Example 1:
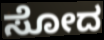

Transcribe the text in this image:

ಸೋದ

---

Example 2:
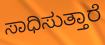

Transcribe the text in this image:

ಸಾಧಿಸುತ್ತಾರೆ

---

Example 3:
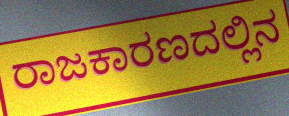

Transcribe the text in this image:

ರಾಜಕಾರಣದಲ್ಲಿನ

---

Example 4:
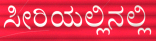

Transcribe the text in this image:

ಸೀರಿಯಲ್ಲಿನಲ್ಲಿ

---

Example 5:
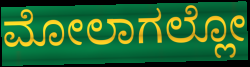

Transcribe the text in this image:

ಮೋಲಾಗಲ್ಲೋ